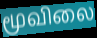
மூவிலை